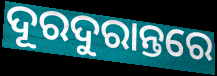
ଦୂରଦୁରାନ୍ତରେ